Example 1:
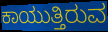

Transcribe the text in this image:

ಕಾಯುತ್ತಿರುವ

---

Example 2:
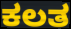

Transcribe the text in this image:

ಕಲತ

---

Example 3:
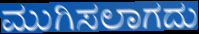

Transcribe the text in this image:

ಮುಗಿಸಲಾಗದು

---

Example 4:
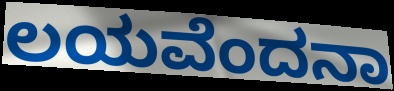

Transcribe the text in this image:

ಲಯವೆಂದನಾ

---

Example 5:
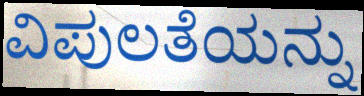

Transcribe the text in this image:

ವಿಪುಲತೆಯನ್ನು